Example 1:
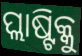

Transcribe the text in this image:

ପ୍ଲାଷ୍ଟିକ୍କୁ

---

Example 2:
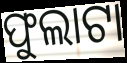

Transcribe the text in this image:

ଫୁଲାଟା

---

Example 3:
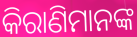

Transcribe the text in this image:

କିରାଣିମାନଙ୍କ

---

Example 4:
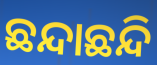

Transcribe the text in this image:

ଛନ୍ଦାଛନ୍ଦି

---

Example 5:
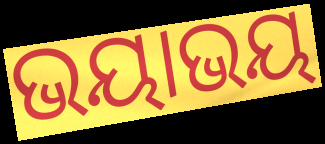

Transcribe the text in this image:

ଭୟାଭୟ